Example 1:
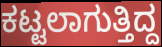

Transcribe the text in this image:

ಕಟ್ಟಲಾಗುತ್ತಿದ್ದ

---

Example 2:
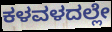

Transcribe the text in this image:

ಕಳವಳದಲ್ಲೇ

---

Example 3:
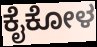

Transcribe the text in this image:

ಕೈಕೋಳ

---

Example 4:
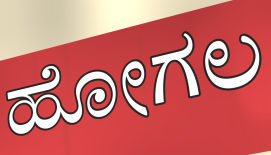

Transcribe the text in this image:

ಹೋಗಲ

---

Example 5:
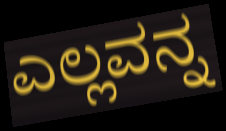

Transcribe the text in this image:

ಎಲ್ಲವನ್ನ